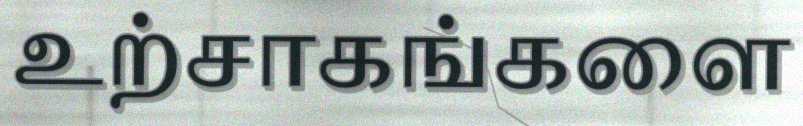
உற்சாகங்களை